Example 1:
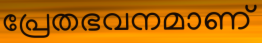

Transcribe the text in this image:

പ്രേതഭവനമാണ്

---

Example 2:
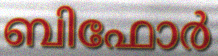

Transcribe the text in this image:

ബിഫോർ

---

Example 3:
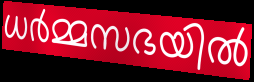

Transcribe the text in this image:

ധർമ്മസഭയിൽ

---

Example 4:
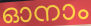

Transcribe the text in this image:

ഓനാം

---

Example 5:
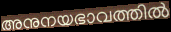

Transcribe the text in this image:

അനുനയഭാവത്തിൽ